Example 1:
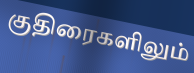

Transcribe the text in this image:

குதிரைகளிலும்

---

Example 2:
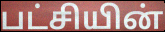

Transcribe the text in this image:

பட்சியின்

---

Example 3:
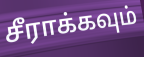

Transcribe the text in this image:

சீராக்கவும்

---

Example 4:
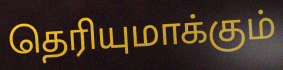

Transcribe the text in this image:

தெரியுமாக்கும்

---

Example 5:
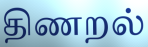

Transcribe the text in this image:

திணறல்